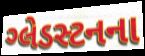
ગ્લેડસ્ટનના